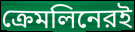
ক্রেমলিনেরই